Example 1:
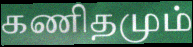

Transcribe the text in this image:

கணிதமும்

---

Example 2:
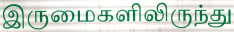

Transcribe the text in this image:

இருமைகளிலிருந்து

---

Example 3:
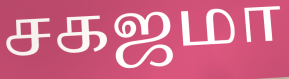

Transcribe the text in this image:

சகஜமா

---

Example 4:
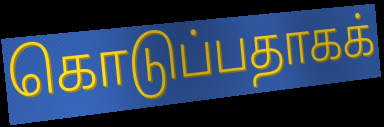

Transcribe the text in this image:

கொடுப்பதாகக்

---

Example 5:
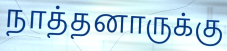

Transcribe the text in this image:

நாத்தனாருக்கு